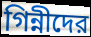
গিন্নীদের